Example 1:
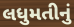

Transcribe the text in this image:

લધુમતીનું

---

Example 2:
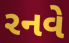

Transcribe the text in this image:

રનવે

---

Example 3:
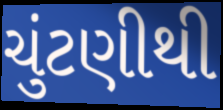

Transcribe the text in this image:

ચુંટણીથી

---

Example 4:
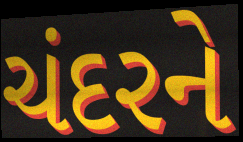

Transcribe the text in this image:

ચંદરને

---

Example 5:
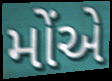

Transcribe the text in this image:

મોંએ